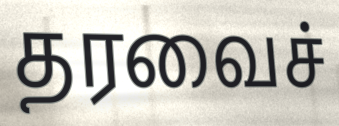
தரவைச்